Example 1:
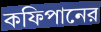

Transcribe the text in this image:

কফিপানের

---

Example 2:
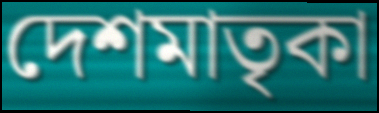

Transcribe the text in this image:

দেশমাতৃকা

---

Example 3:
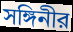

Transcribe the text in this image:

সঙ্গিনীর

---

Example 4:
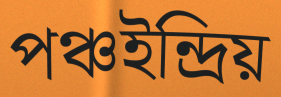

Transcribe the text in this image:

পঞ্চইন্দ্রিয়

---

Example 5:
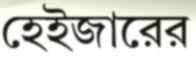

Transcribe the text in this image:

হেইজারের